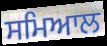
ਸਮਿਆਲ